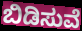
ಬಿಡಿಸುವೆ